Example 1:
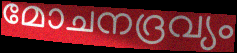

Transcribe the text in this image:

മോചനദ്രവ്യം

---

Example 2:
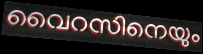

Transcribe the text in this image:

വൈറസിനെയും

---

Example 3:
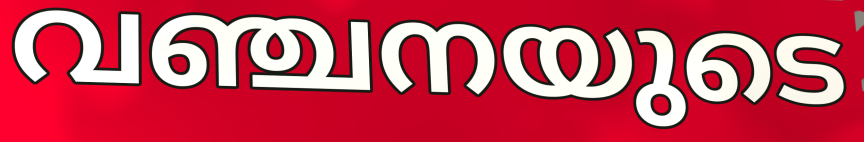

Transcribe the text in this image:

വഞ്ചനയുടെ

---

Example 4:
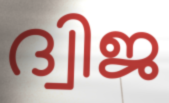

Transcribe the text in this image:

ദ്വിജ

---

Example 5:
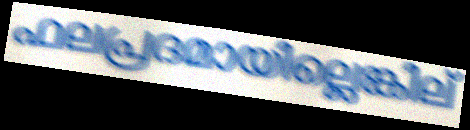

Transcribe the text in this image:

ഫലപ്രദമായില്ലെങ്കില്